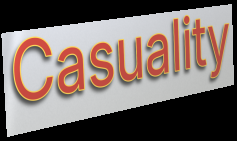
Casuality